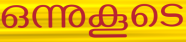
ഒന്നുകൂടെ